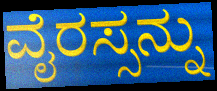
ವೈರಸ್ಸನ್ನು